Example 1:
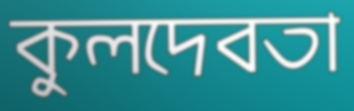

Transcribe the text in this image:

কুলদেবতা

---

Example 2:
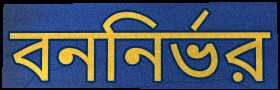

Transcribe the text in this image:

বননির্ভর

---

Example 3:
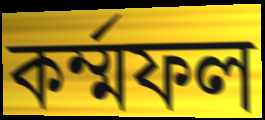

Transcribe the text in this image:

কর্ম্মফল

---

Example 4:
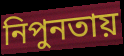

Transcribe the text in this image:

নিপুনতায়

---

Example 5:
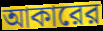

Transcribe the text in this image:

আকারের